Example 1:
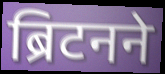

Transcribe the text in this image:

ब्रिटनने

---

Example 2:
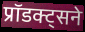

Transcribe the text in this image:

प्रॉडक्ट्सने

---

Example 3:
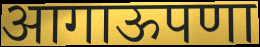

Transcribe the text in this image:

आगाऊपणा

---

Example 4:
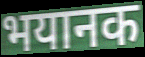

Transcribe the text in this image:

भयानक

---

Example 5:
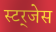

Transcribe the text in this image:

स्टर्जेस